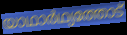
യാഥാർഥ്യത്തോട്